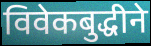
विवेकबुद्धीने